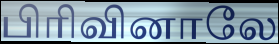
பிரிவினாலே